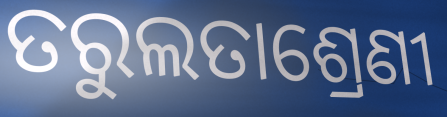
ତରୁଲତାଶ୍ରେଣୀ